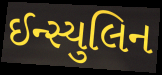
ઈન્સ્યુલિન